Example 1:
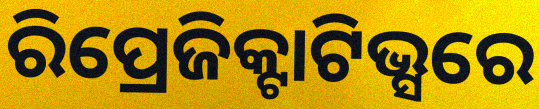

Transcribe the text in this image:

ରିପ୍ରେଜିକ୍ଟାଟିଭ୍ସରେ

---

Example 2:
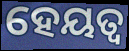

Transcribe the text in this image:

ହେୟତ୍ୱ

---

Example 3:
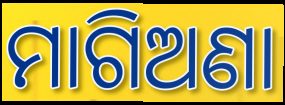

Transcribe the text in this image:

ମାଗିଅଣା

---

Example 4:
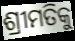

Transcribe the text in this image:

ଶ୍ରୀମତିକୁ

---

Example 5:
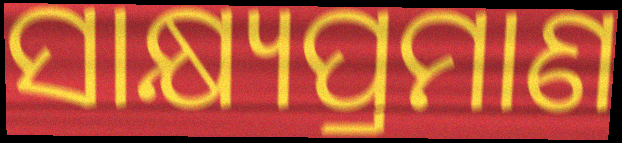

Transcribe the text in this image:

ସାକ୍ଷ୍ୟପ୍ରମାଣ